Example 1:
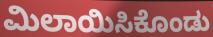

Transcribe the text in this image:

ಮಿಲಾಯಿಸಿಕೊಂಡು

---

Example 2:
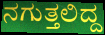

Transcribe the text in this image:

ನಗುತ್ತಲಿದ್ದ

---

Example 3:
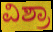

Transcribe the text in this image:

ವಿಶ್ರಾ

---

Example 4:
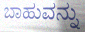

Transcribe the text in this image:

ಬಾಹುವನ್ನು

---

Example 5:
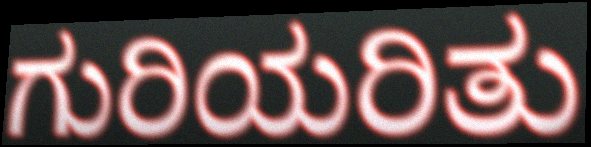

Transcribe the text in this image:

ಗುರಿಯರಿತು